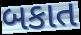
બકાત